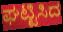
ಘಟ್ಟಿಸಿದ